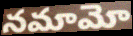
నమామో